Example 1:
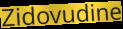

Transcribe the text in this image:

Zidovudine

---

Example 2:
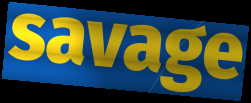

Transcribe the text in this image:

savage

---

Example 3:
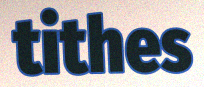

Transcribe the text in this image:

tithes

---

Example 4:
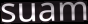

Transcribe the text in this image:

suam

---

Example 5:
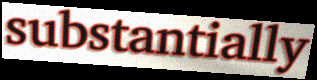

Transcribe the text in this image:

substantially